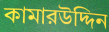
কামারউদ্দিন